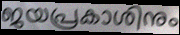
ജയപ്രകാശിനും